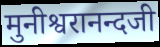
मुनीश्वरानन्दजी